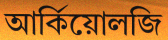
আর্কিয়োলজি